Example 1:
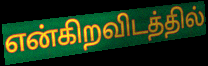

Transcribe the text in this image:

என்கிறவிடத்தில்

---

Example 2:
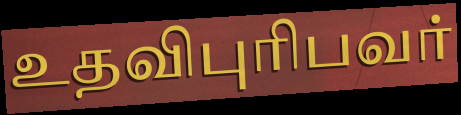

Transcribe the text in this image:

உதவிபுரிபவர்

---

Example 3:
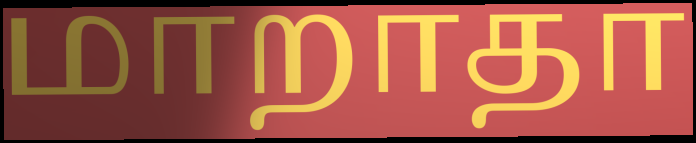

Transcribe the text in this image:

மாறாதா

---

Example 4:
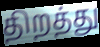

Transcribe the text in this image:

திறத்து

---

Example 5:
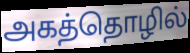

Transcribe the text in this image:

அகத்தொழில்